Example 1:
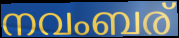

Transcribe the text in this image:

നവംബര്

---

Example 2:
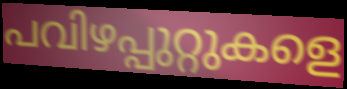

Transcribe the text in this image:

പവിഴപ്പുറ്റുകളെ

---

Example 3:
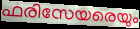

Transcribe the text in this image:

ഫരിസേയരെയും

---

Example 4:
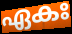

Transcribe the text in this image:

ഏകഃ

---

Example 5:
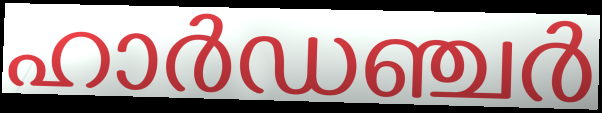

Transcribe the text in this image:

ഹാർഡഞ്ചർ